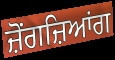
ਜ਼ੋਂਗਜ਼ਿਆਂਗ